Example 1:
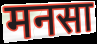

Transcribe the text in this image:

मनसा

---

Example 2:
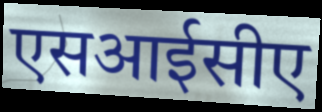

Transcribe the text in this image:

एसआईसीए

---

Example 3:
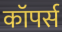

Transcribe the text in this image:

कॉपर्स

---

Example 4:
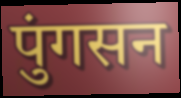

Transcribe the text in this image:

पुंगसन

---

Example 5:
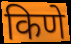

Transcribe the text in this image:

किणे